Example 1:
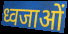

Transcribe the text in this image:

ध्वजाओं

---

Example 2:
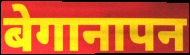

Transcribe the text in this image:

बेगानापन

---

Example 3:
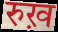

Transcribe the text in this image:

रुख़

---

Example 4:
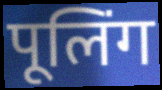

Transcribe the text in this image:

पूलिंग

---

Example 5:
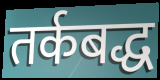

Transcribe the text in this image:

तर्कबद्ध